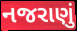
નજરાણું